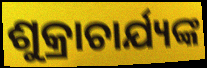
ଶୁକ୍ରାଚାର୍ଯ୍ୟଙ୍କ